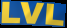
LVL